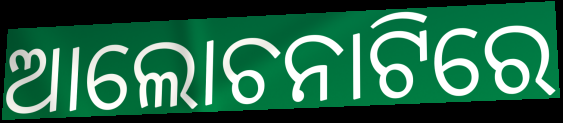
ଆଲୋଚନାଟିରେ